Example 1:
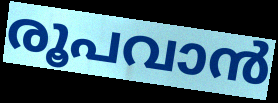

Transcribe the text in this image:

രൂപവാൻ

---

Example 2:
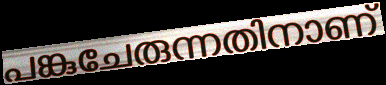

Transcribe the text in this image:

പങ്കുചേരുന്നതിനാണ്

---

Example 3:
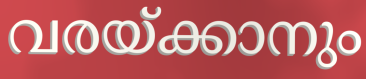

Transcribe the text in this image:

വരയ്ക്കാനും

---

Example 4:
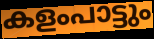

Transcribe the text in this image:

കളംപാട്ടും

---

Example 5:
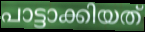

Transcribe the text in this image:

പാട്ടാക്കിയത്